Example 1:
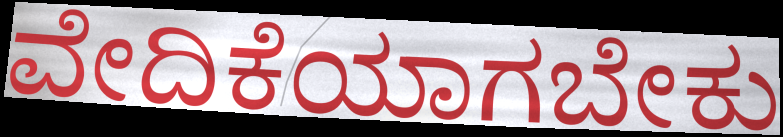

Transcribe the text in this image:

ವೇದಿಕೆಯಾಗಬೇಕು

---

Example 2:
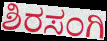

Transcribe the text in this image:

ಶಿರಸಂಗಿ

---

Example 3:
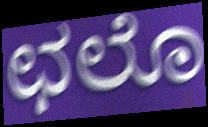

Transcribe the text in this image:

ಛಲೊ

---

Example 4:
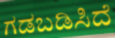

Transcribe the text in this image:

ಗಡಬಡಿಸಿದೆ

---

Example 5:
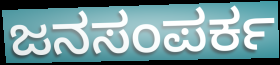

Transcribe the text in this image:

ಜನಸಂಪರ್ಕ